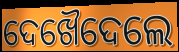
ଦେଖୈଦେଲେ